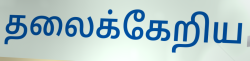
தலைக்கேறிய